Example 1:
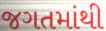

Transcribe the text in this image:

જગતમાંથી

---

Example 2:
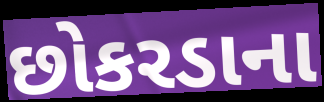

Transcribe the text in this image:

છોકરડાના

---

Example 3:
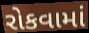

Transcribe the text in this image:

રોકવામાં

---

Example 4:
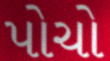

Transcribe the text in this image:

પોચો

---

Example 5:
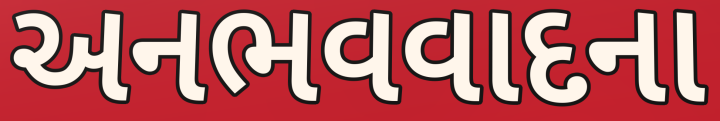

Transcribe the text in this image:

અનભવવાદના